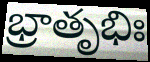
భ్రాతృభిః